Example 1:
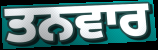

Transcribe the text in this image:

ਤਨਵਾਰ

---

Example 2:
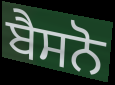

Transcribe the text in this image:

ਬੈਸਨੋ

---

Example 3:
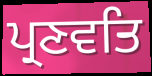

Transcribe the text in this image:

ਪ੍ਰਣਵਤਿ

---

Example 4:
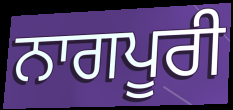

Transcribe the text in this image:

ਨਾਗਪੂਰੀ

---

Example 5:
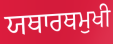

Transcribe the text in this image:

ਯਥਾਰਥਮੁਖੀ